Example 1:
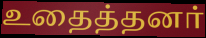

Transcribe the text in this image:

உதைத்தனர்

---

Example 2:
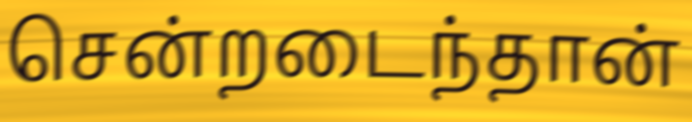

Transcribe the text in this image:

சென்றடைந்தான்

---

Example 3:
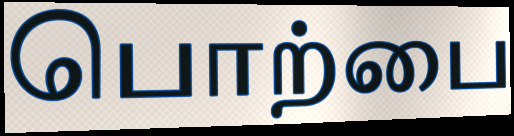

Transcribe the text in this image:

பொற்பை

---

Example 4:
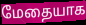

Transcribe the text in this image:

மேதையாக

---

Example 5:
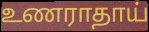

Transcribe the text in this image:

உணராதாய்